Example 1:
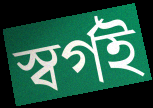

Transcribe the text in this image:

স্বৰ্গই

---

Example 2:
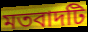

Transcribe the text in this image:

মতবাদটি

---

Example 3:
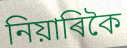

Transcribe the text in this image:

নিয়াৰিকৈ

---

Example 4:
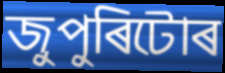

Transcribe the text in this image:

জুপুৰিটোৰ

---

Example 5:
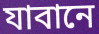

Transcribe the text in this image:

যাবানে